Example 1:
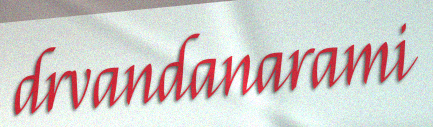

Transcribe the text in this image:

drvandanarami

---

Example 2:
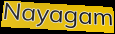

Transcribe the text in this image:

Nayagam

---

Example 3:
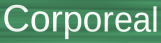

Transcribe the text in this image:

Corporeal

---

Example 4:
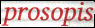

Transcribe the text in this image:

prosopis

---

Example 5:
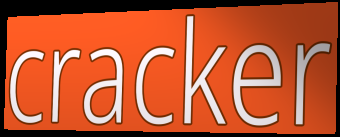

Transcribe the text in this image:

cracker